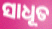
ସାଧୂତ